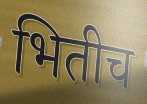
भितीच